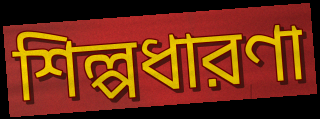
শিল্পধারণা